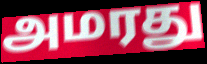
அமரது